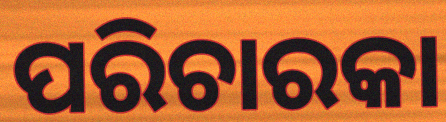
ପରିଚାରକା